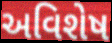
અવિશેષ